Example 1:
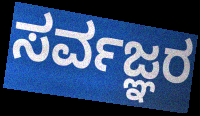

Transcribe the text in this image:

ಸರ್ವಜ್ಞರ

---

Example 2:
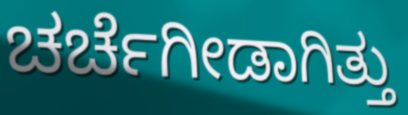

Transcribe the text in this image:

ಚರ್ಚೆಗೀಡಾಗಿತ್ತು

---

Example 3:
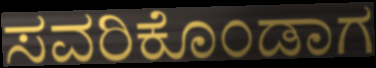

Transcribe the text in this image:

ಸವರಿಕೊಂಡಾಗ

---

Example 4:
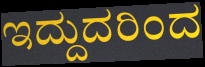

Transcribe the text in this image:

ಇದ್ದುದರಿಂದ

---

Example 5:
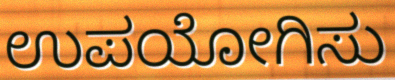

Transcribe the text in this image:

ಉಪಯೋಗಿಸು